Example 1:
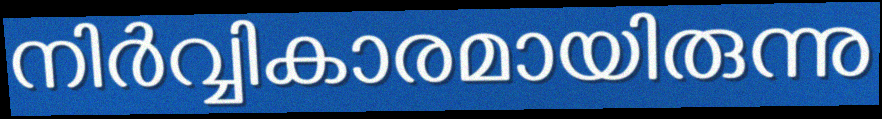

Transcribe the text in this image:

നിർവ്വികാരമായിരുന്നു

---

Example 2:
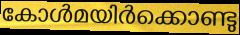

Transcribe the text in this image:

കോൾമയിർക്കൊണ്ടു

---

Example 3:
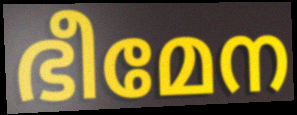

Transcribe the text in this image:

ഭീമേന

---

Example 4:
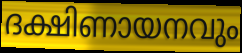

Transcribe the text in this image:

ദക്ഷിണായനവും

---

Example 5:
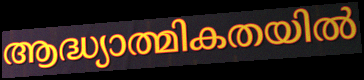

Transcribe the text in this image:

ആദ്ധ്യാത്മികതയിൽ